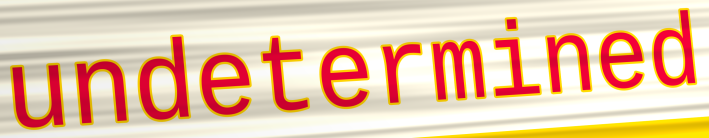
undetermined